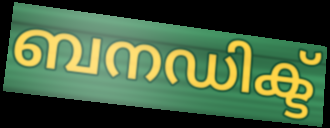
ബനഡിക്ട്